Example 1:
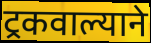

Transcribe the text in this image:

ट्रकवाल्याने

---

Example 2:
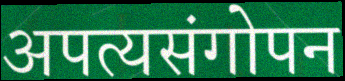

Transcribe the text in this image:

अपत्यसंगोपन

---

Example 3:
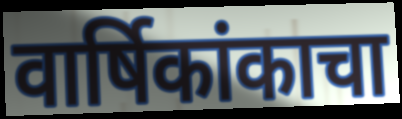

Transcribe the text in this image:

वार्षिकांकाचा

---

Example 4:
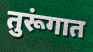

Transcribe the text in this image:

तुरूंगात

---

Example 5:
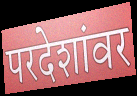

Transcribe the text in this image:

परदेशांवर